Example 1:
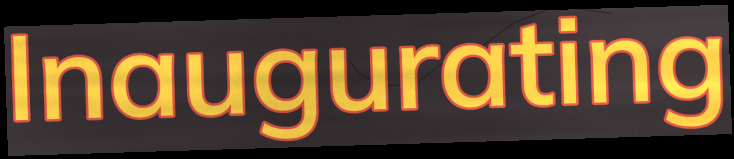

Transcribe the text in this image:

Inaugurating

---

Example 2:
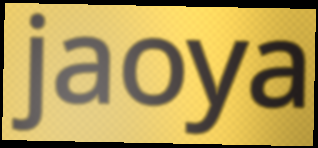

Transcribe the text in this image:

jaoya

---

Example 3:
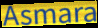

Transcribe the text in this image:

Asmara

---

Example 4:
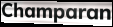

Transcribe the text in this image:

Champaran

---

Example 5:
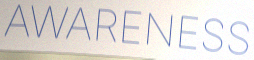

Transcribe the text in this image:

AWARENESS